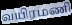
வயிரமணி